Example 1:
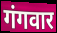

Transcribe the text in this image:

गंगवार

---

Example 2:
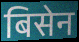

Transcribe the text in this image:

बिसेन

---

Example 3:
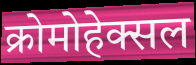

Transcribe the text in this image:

क्रोमोहेक्सल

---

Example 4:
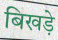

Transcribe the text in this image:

बिखड़े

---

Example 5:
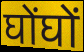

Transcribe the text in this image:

घोंघों